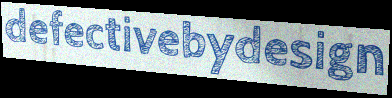
defectivebydesign